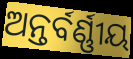
ଅନ୍ତର୍ବର୍ଣ୍ଣୀୟ